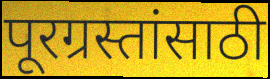
पूरग्रस्तांसाठी